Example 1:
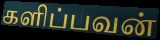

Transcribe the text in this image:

களிப்பவன்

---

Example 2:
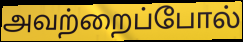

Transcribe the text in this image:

அவற்றைப்போல்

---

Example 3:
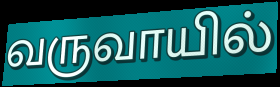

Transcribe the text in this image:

வருவாயில்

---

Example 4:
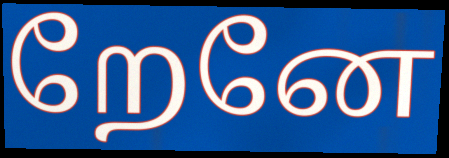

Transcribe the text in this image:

றேனே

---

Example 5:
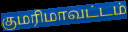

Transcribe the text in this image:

குமரிமாவட்டம்